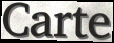
Carte